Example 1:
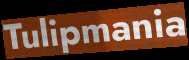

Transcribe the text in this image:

Tulipmania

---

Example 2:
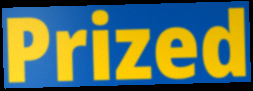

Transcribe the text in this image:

Prized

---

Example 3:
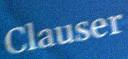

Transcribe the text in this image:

Clauser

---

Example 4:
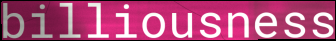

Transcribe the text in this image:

billiousness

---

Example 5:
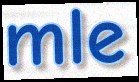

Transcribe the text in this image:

mle